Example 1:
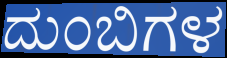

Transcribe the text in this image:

ದುಂಬಿಗಳ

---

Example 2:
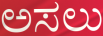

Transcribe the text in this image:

ಅಸಲು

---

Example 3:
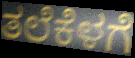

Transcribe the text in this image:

ತಲೆಕೆಳಗೆ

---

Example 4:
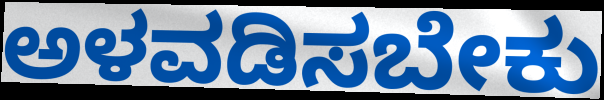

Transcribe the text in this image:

ಅಳವಡಿಸಬೇಕು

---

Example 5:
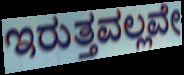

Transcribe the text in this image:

ಇರುತ್ತವಲ್ಲವೇ